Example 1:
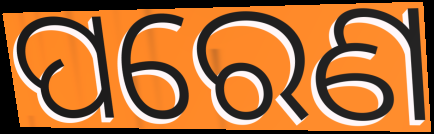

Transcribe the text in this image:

ପରେଣ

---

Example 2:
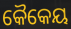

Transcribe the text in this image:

କୈକେୟ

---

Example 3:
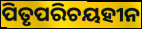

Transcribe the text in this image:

ପିତୃପରିଚୟହୀନ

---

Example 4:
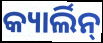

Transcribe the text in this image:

କ୍ୟାର୍ଲିନ୍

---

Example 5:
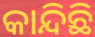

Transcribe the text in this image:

କାନ୍ଦିଛି